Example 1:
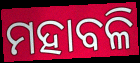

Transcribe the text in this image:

ମହାବଳି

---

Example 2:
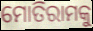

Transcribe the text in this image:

ମୋତିରାମକୁ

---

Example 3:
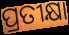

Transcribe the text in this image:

ପ୍ରତୀକ୍ଷା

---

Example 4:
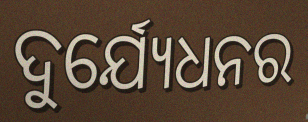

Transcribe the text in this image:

ଦୁର୍ଯ୍ୟେଧନର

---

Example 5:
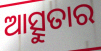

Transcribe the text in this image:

ଆତ୍ସୁତାର